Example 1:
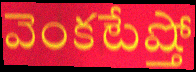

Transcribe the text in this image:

వెంకటేష్తో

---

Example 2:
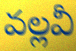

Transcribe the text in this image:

వల్లవీ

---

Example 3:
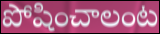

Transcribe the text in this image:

పోషించాలంట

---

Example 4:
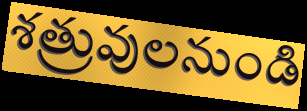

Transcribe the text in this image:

శత్రువులనుండి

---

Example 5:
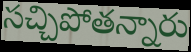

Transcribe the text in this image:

సచ్చిపోతన్నారు